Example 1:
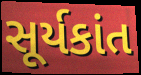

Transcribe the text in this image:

સૂર્યકાંત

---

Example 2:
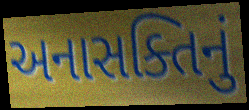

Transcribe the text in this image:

અનાસક્તિનું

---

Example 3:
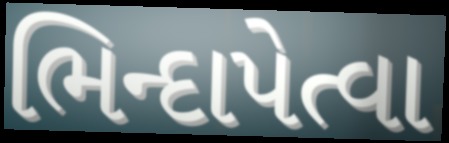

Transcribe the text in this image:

ભિન્દાપેત્વા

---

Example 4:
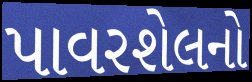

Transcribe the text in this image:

પાવરશેલનો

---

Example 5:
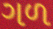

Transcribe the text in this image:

ગળ